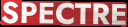
SPECTRE